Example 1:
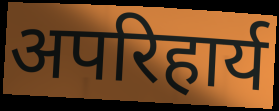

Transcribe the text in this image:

अपरिहार्य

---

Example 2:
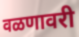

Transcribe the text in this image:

वळणावरी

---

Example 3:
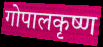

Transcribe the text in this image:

गोपालकृष्ण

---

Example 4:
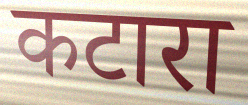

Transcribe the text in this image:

कटारा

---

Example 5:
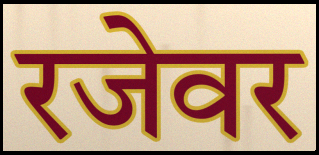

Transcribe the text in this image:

रजेवर